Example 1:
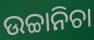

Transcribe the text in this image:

ଉଚ୍ଚାନିଚା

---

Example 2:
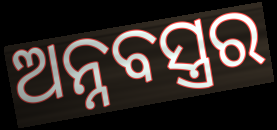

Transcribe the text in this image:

ଅନ୍ନବସ୍ତ୍ରର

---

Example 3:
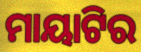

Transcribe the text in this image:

ମାୟାଟିର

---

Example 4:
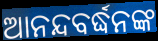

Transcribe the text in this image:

ଆନନ୍ଦବର୍ଦ୍ଧନଙ୍କ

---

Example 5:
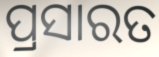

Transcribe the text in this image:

ପ୍ରସାରତ